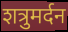
शत्रुमर्दन